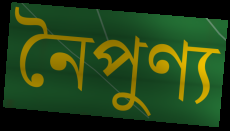
নৈপুণ্য